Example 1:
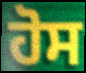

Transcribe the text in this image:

ਹੋਸ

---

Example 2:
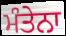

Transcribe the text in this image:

ਮੰਤੇਨਾ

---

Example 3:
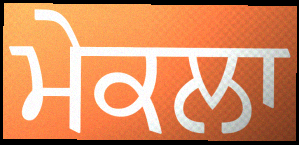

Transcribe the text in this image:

ਮੇਕਲਾ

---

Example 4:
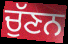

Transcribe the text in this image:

ਚੁੱਣਨ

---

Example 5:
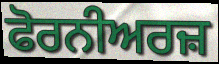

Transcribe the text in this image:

ਫੋਰਨੀਅਰਜ਼